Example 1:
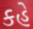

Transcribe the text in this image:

કહે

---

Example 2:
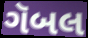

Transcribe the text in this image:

ગૅબલ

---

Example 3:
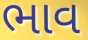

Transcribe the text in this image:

ભાવ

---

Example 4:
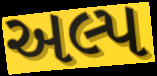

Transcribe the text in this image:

અલ્પ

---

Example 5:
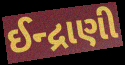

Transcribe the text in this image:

ઈન્દ્રાણી